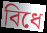
বিধে